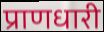
प्राणधारी